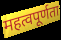
महत्वपूर्णता